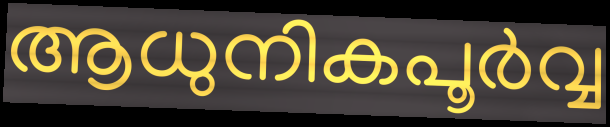
ആധുനികപൂർവ്വ